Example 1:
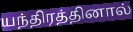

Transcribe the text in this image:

யந்திரத்தினால்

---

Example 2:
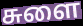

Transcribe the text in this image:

சுளை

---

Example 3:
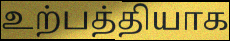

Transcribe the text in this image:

உற்பத்தியாக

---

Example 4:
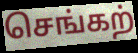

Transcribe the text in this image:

செங்கற்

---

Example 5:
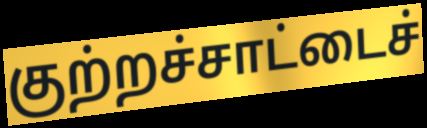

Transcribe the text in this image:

குற்றச்சாட்டைச்